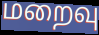
மறைவு